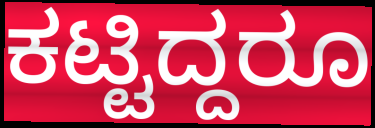
ಕಟ್ಟಿದ್ದರೂ